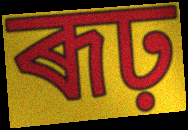
ৰূঢ়